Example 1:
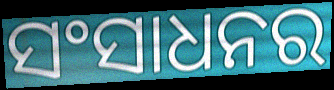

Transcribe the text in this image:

ସଂସାଧନର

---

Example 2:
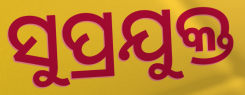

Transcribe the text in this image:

ସୁପ୍ରଯୁକ୍ତ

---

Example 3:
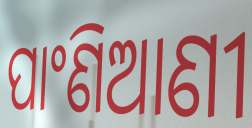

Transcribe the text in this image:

ପାଂଣିଆଣୀ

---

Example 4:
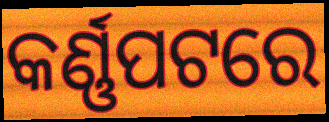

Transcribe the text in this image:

କର୍ଣ୍ଣପଟରେ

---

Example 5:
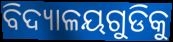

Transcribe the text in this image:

ବିଦ୍ୟାଳୟଗୁଡିକୁ